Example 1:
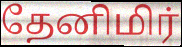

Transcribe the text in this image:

தேனிமிர்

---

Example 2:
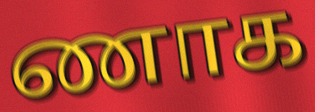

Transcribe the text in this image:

ணாக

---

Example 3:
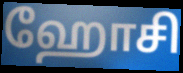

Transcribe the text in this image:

ஹோசி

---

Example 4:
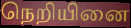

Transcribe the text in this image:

நெறியினை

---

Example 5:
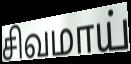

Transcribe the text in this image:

சிவமாய்